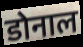
डोनाल